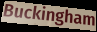
Buckingham